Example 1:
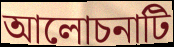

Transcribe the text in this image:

আলোচনাটি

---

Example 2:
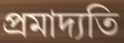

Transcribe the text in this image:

প্রমাদ্যতি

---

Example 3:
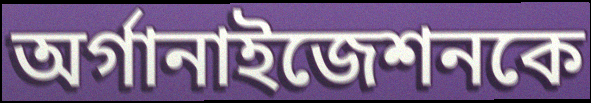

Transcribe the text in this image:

অর্গানাইজেশনকে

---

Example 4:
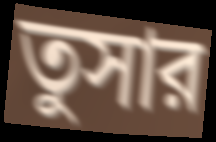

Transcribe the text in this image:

তুসার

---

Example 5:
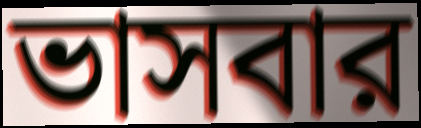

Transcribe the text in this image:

ভাসবার